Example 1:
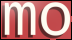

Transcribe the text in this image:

mo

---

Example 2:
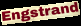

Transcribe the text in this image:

Engstrand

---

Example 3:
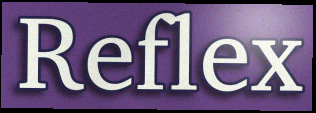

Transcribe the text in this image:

Reflex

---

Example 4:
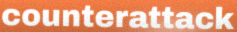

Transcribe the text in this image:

counterattack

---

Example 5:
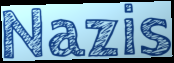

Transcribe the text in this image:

Nazis